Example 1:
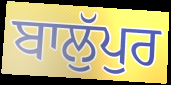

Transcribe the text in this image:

ਬਾਲੁੱਪੁਰ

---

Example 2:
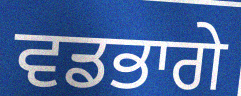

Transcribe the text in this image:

ਵਡਭਾਗੇ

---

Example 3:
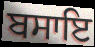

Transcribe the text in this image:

ਬਸਾਇ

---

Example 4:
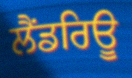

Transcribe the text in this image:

ਲੈਂਡਰਿਊ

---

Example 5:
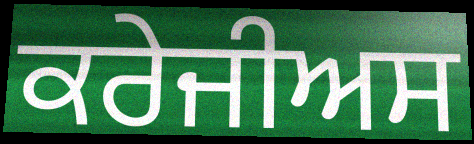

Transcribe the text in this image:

ਕਰੇਜੀਅਸ